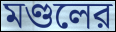
মণ্ডলের